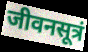
जीवनसूत्रं